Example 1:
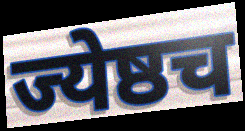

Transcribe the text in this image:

ज्येष्ठच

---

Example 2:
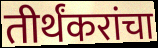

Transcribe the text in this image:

तीर्थंकरांचा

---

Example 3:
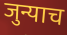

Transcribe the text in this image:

जुन्याच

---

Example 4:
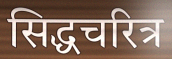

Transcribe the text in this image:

सिद्धचरित्र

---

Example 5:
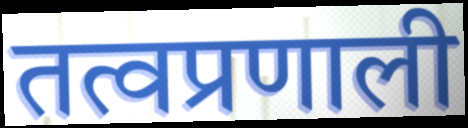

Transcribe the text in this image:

तत्वप्रणाली